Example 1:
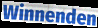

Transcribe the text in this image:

Winnenden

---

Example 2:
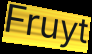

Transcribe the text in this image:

Fruyt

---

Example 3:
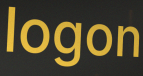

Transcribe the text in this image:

logon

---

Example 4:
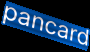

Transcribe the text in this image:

pancard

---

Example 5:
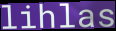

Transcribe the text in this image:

lihlas